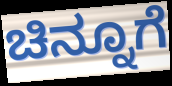
ಚಿನ್ನೂಗೆ